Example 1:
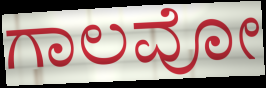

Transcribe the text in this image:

ಗಾಲವೋ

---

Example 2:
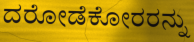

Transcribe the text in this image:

ದರೋಡೆಕೋರರನ್ನು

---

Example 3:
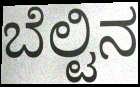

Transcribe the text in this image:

ಬೆಲ್ಟಿನ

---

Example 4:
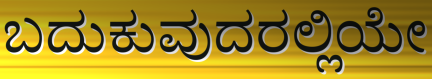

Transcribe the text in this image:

ಬದುಕುವುದರಲ್ಲಿಯೇ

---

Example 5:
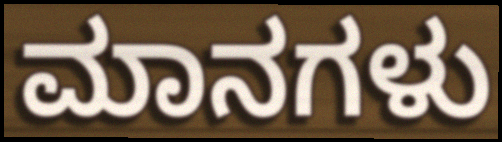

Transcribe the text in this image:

ಮಾನಗಳು